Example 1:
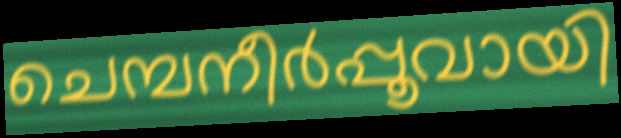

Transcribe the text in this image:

ചെമ്പനീർപ്പൂവായി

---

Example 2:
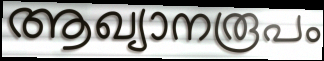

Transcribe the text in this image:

ആഖ്യാനരൂപം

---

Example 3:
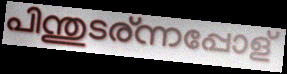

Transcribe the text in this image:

പിന്തുടര്ന്നപ്പോള്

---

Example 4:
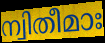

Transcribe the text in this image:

ന്വിതീമാഃ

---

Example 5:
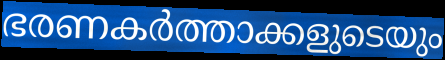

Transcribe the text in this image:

ഭരണകർത്താക്കളുടെയും